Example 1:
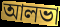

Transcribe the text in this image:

আলভা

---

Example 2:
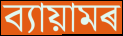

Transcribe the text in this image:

ব্যায়ামৰ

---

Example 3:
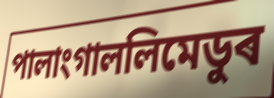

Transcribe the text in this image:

পালাংগাললিমেডুৰ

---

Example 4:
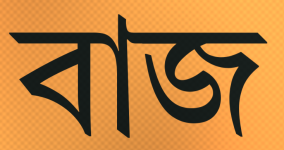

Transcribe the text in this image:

বাজ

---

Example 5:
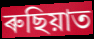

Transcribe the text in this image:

ৰুছিয়াত